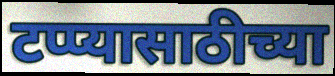
टप्प्यासाठीच्या